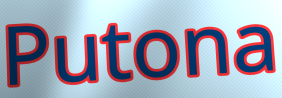
Putona